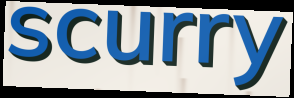
scurry